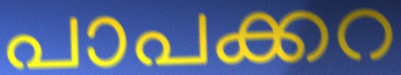
പാപക്കറ